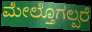
ಮೇಲ್ತೊಗಲ್ಪರೆ